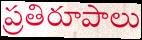
ప్రతిరూపాలు